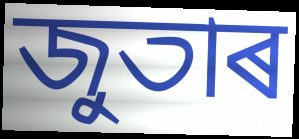
জুতাৰ